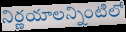
నిర్ణయాలన్నింటిలో